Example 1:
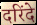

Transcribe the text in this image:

दरिंदे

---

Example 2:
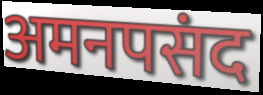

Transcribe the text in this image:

अमनपसंद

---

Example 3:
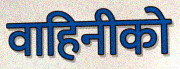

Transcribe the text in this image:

वाहिनीको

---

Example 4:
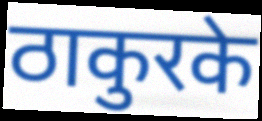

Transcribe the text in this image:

ठाकुरके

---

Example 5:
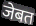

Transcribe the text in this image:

जेबत